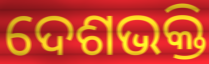
ଦେଶଭକ୍ତି